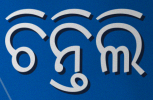
ଚିନ୍ତିଲି